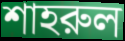
শাহরুল